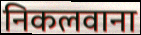
निकलवाना